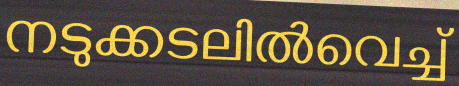
നടുക്കടലിൽവെച്ച്